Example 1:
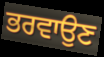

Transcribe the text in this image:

ਭਰਵਾਉਣ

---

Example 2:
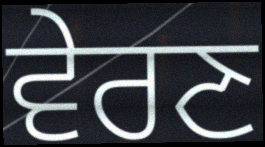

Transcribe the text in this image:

ਵੇਰਣ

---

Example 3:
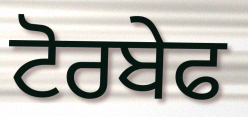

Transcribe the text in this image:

ਟੋਰਬੇਫ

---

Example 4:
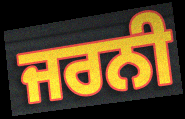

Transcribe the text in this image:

ਜਰਨੀ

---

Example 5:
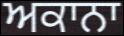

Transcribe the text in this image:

ਅਕਾਨਾ